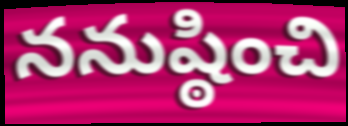
ననుష్ఠించి